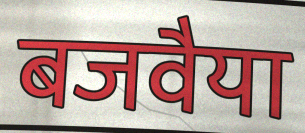
बजवैया